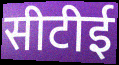
सीटीई